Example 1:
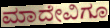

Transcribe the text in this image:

ಮಾದೇವಿಗೂ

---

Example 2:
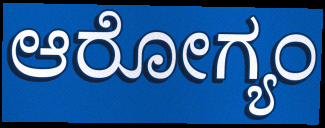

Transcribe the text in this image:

ಆರೋಗ್ಯಂ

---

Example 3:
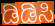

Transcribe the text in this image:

ಡಿಡಿಸಿ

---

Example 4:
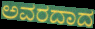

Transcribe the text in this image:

ಅವರದಾದ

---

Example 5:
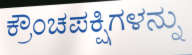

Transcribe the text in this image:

ಕ್ರೌಂಚಪಕ್ಷಿಗಳನ್ನು